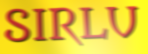
SIRLU